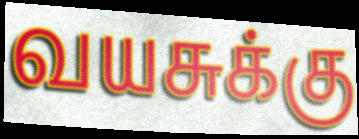
வயசுக்கு